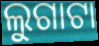
ଲୁଗାଟା